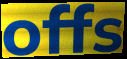
offs